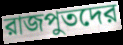
রাজপুতদের